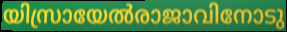
യിസ്രായേൽരാജാവിനോടു